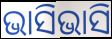
ଭାସିଭାସି